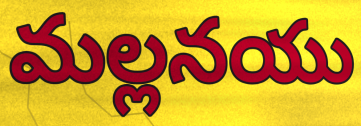
మల్లనయు